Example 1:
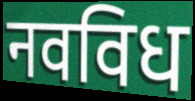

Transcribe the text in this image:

नवविध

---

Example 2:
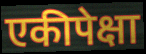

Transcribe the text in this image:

एकीपेक्षा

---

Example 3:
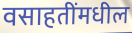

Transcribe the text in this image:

वसाहतींमधील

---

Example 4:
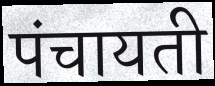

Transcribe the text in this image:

पंचायती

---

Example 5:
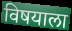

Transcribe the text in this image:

विषयाला